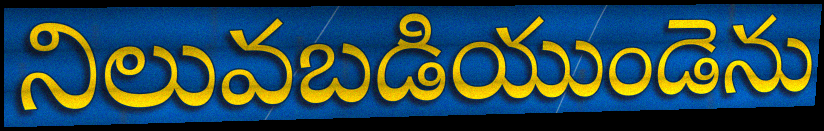
నిలువబడియుండెను